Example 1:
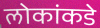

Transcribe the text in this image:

लोकांकडे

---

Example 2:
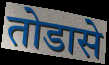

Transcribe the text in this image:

तोडासे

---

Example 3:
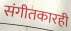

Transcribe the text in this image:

संगीतकारही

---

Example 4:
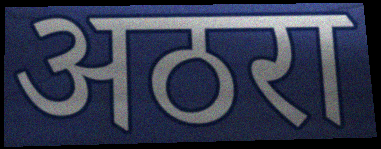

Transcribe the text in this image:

अठरा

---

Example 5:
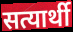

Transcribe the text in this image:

सत्यार्थी